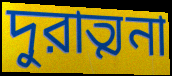
দুরাত্মনা